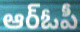
ఆర్ఓపీ